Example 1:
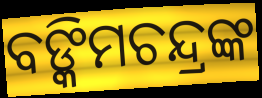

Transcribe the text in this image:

ବଙ୍କିମଚନ୍ଦ୍ରଙ୍କ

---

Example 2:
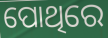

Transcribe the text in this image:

ପୋଥିରେ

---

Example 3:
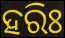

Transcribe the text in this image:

ହରିଃ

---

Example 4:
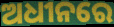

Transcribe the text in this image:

ଅଧୀନରେ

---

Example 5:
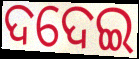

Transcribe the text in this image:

ଦଦେଇ